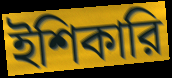
ইশিকারি